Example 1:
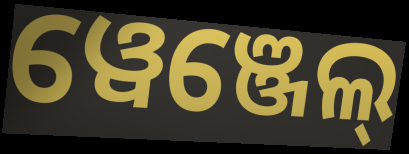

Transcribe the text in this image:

ୱେଞ୍ଜେଲ୍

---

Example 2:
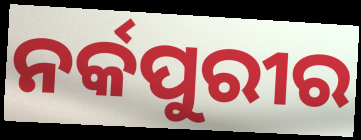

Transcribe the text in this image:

ନର୍କପୁରୀର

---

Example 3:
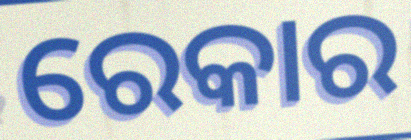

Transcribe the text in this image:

ରେକାର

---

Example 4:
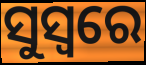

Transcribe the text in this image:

ସୁସ୍ୱରେ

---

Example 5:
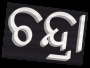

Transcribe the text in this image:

ଚନ୍ଦ୍ରା